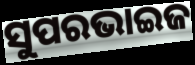
ସୁପରଭାଇଜ